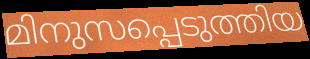
മിനുസപ്പെടുത്തിയ